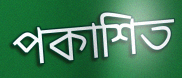
পকাশিত